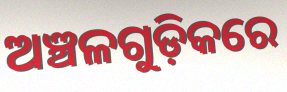
ଅଞ୍ଚଳଗୁଡ଼ିକରେ